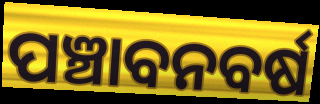
ପଞ୍ଚାବନବର୍ଷ